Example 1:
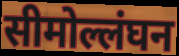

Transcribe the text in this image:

सीमोल्लंघन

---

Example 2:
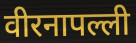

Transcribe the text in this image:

वीरनापल्ली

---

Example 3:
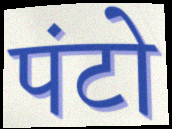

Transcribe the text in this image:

पंटो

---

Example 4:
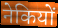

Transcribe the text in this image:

नेकियों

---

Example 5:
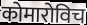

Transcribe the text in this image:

कोमारोविच